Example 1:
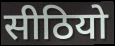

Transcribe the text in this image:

सीठियो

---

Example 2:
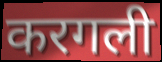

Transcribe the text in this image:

करगली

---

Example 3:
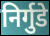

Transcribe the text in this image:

निर्गुडे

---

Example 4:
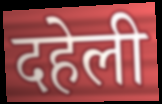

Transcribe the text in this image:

दहेली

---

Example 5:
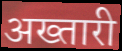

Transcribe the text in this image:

अख्तारी